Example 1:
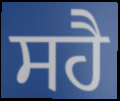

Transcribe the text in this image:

ਸਹੈ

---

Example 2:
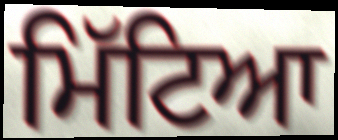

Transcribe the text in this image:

ਮਿੱਟਿਆ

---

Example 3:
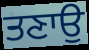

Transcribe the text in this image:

ਤਣਾਉ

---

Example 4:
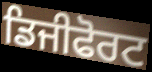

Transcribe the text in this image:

ਡਿਜੀਫੋਰਟ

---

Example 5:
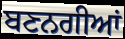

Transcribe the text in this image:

ਬਣਨਗੀਆਂ